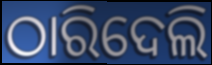
ଠାରିଦେଲି